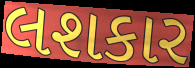
લશકાર